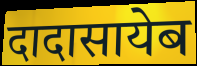
दादासायेब